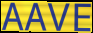
AAVE